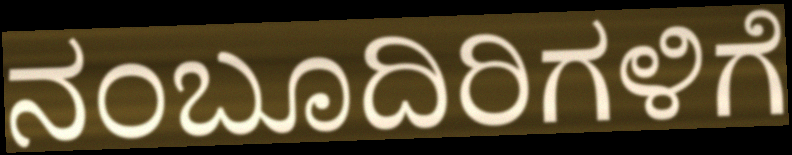
ನಂಬೂದಿರಿಗಳಿಗೆ